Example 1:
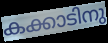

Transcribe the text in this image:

കക്കാടിനു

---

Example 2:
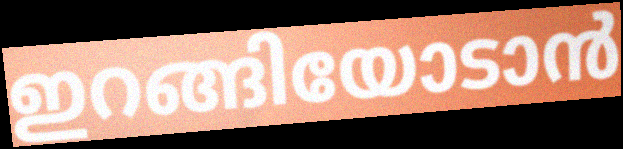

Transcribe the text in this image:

ഇറങ്ങിയോടാൻ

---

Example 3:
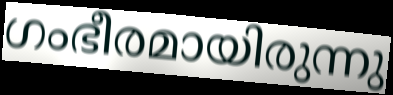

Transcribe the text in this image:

ഗംഭീരമായിരുന്നു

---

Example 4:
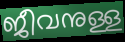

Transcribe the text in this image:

ജീവനുള്ള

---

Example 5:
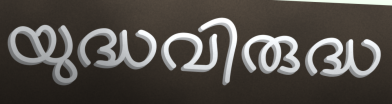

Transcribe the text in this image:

യുദ്ധവിരുദ്ധ